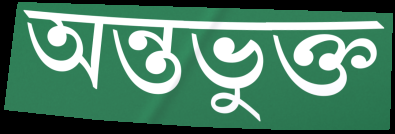
অন্তভুক্ত